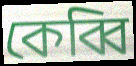
কেব্বি